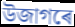
উজাগৰে